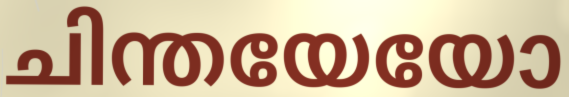
ചിന്തയേയോ